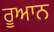
ਰੂਆਨ